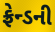
ફ્રેન્ડની